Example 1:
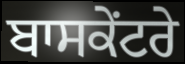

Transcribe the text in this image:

ਬਾਸਕੇਂਟਰੇ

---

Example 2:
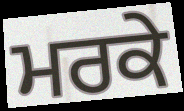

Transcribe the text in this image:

ਮਰਕੇ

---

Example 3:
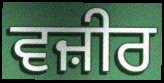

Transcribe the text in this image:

ਵਜ਼ੀਰ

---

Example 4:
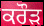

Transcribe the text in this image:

ਕਰੌੜ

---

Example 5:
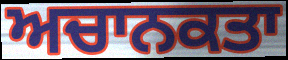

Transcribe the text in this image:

ਅਚਾਨਕਤਾ